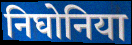
निघोनिया